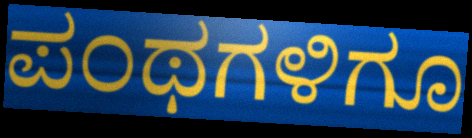
ಪಂಥಗಳಿಗೂ